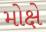
મોક્ષે